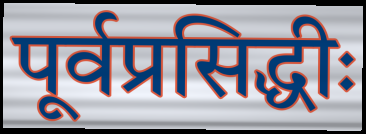
पूर्वप्रसिद्धीः